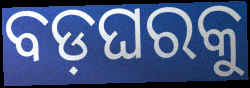
ବଡ଼ଘରକୁ